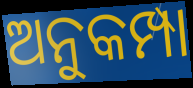
ଅନୁକମ୍ପା